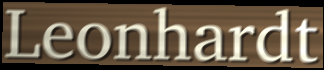
Leonhardt